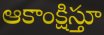
ఆకాంక్షిస్తూ